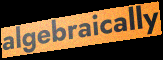
algebraically